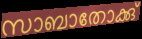
സാബാതോക്കു്